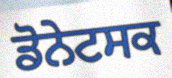
ਡੋਨੇਟਸਕ